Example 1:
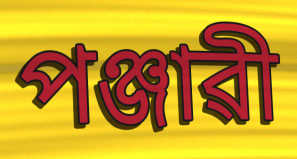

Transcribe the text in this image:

পঞ্জাৱী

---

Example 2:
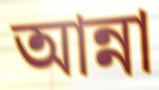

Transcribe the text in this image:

আন্না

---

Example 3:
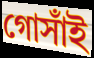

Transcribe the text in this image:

গোসাঁই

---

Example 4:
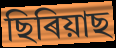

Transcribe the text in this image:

ছিৰিয়াছ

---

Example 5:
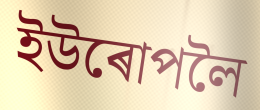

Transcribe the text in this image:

ইউৰোপলৈ